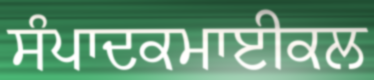
ਸੰਪਾਦਕਮਾਈਕਲ